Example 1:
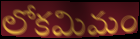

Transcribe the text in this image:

లోకమిమం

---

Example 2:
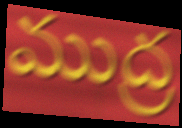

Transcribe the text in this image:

ముద్ర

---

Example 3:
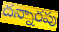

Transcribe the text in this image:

దన్నారపు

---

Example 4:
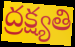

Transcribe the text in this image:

ద్రక్ష్యతి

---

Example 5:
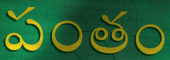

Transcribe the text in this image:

పంతం